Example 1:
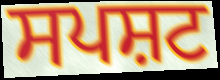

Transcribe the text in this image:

ਸਪਸ਼ਟ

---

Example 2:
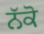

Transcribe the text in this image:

ਨੱਕੋ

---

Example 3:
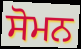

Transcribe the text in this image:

ਸੋਮਨ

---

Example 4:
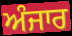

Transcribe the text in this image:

ਅੰਜਾਰ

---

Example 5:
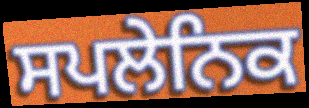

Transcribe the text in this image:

ਸਪਲੇਨਿਕ